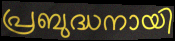
പ്രബുദ്ധനായി